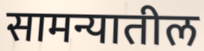
सामन्यातील